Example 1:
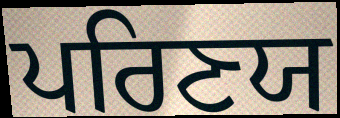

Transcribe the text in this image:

ਪਰਿਣਯ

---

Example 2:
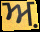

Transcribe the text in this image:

ਅ਼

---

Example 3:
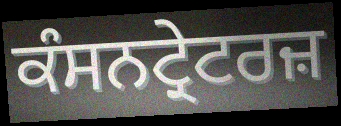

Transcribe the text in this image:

ਕੰਸਨਟ੍ਰੇਟਰਜ਼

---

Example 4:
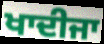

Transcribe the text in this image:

ਖਾਦੀਜਾ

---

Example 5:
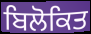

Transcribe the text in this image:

ਬਿਲੋਕਿਤ